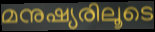
മനുഷ്യരിലൂടെ